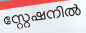
സ്റ്റേഷനിൽ